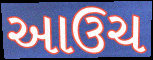
આઉચ